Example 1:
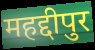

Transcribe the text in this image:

महद्दीपुर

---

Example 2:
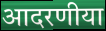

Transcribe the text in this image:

आदरणीया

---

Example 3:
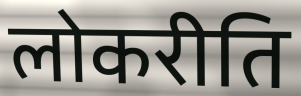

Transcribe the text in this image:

लोकरीति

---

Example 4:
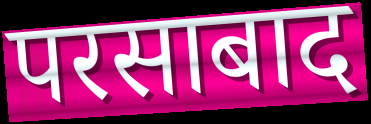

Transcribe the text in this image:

परसाबाद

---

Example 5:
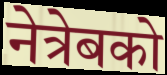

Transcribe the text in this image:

नेत्रेबको